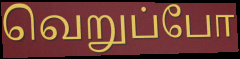
வெறுப்போ